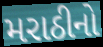
મરાઠીનો